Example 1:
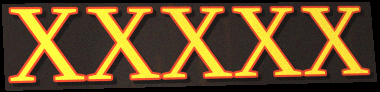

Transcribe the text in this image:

XXXXX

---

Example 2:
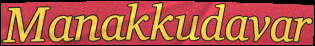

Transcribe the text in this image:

Manakkudavar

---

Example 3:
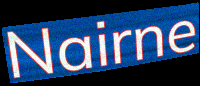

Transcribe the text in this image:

Nairne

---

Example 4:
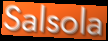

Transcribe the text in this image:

Salsola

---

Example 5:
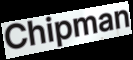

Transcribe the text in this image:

Chipman